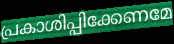
പ്രകാശിപ്പിക്കേണമേ